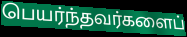
பெயர்ந்தவர்களைப்